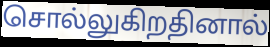
சொல்லுகிறதினால்